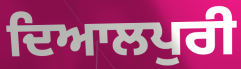
ਦਿਆਲਪੁਰੀ